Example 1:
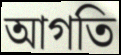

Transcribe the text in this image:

আগতি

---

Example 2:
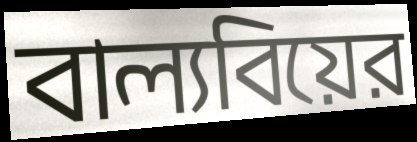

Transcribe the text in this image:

বাল্যবিয়ের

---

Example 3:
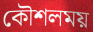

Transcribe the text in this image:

কৌশলময়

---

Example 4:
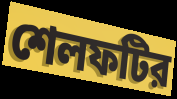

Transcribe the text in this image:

শেলফটির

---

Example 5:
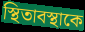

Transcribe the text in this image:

স্থিতাবস্থাকে